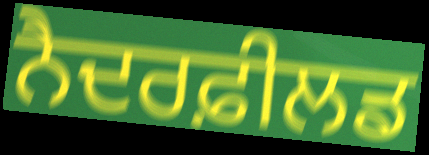
ਨੈਦਰਫ਼ੀਲਡ